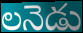
లనెడు